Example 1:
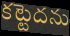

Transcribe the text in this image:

కట్టెదను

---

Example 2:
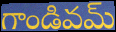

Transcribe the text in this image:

గాండివమ్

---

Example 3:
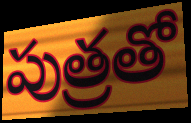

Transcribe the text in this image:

పుత్రతో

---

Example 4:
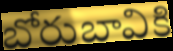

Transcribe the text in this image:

బోరుబావికి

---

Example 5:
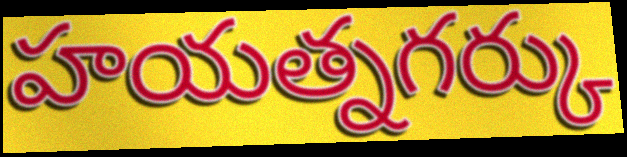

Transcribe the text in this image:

హయత్నగర్కు